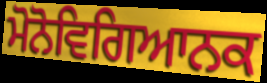
ਮੋਨੋਵਿਗਿਆਨਕ